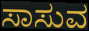
ಸಾಸುವ